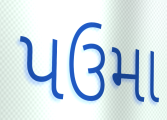
પઉમા